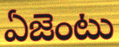
ఏజెంటు